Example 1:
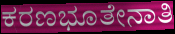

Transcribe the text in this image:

ಕರಣಭೂತೇನಾತಿ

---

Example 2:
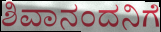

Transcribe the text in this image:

ಶಿವಾನಂದನಿಗೆ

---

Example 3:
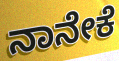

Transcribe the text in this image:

ನಾನೇಕೆ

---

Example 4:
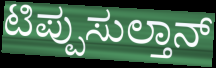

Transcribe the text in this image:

ಟಿಪ್ಪುಸುಲ್ತಾನ್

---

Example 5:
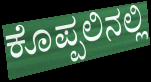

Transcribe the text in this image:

ಕೊಪ್ಪಲಿನಲ್ಲಿ